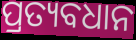
ପ୍ରତ୍ୟବଧାନ